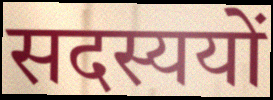
सदस्ययों